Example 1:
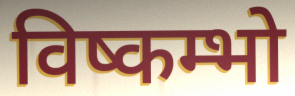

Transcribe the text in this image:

विष्कम्भो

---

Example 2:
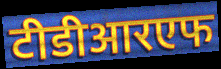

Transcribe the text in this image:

टीडीआरएफ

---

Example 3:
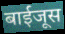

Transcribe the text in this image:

बाईजूस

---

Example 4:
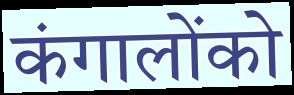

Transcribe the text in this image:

कंगालोंको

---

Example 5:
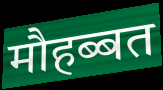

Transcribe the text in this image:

मौहब्बत